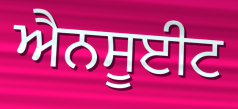
ਐਨਸੂਈਟ